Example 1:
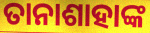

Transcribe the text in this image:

ତାନାଶାହାଙ୍କ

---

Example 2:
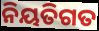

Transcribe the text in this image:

ନିୟତିଗତ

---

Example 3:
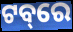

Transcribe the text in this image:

ଟବ୍‌ରେ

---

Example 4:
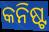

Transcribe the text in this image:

କନିଷ୍ଟ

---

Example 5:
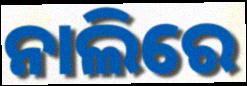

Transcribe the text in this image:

ନାଲିରେ